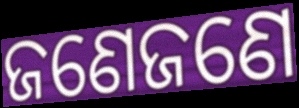
ଜଣେଜଣେ